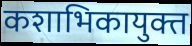
कशाभिकायुक्त